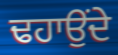
ਢਹਾਉਂਦੇ